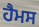
ਹੈਮਸ